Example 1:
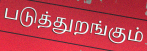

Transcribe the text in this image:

படுத்துறங்கும்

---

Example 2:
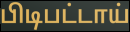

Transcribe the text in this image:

பிடிபட்டாய்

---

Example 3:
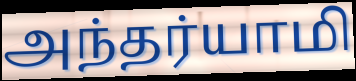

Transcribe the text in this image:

அந்தர்யாமி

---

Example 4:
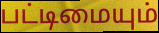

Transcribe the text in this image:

பட்டிமையும்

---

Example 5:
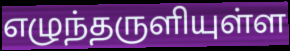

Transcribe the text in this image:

எழுந்தருளியுள்ள